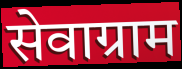
सेवाग्राम